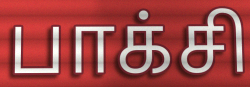
பாக்சி